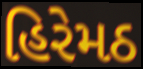
હિરેમઠ